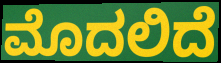
ಮೊದಲಿದೆ